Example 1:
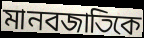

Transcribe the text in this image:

মানবজাতিকে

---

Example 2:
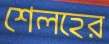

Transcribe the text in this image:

শেলহের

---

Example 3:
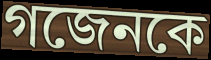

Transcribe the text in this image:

গজেনকে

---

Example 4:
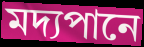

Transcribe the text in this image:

মদ্যপানে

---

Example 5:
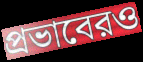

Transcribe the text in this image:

প্রভাবেরও